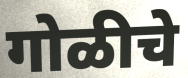
गोळीचे